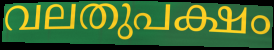
വലതുപക്ഷം